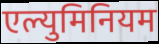
एल्युमिनियम